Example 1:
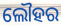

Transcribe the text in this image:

ଲୌହର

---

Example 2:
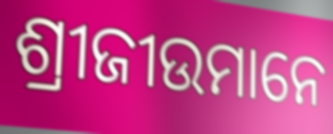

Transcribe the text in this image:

ଶ୍ରୀଜୀଉମାନେ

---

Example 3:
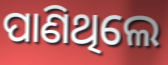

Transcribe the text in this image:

ପାଣିଥିଲେ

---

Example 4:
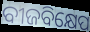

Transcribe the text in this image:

ବୀଜବିକ୍ଷେପ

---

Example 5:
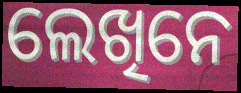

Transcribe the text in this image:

ଲେଖିନେ